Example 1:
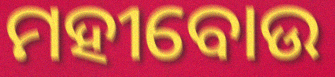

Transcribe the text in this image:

ମହୀବୋଉ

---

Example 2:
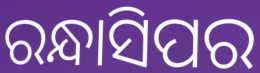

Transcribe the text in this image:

ରନ୍ଧାସିପର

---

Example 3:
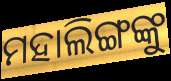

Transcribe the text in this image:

ମହାଲିଙ୍ଗଙ୍କୁ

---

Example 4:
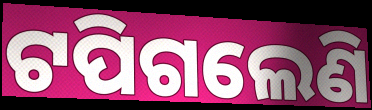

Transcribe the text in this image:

ଟପିଗଲେଣି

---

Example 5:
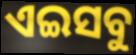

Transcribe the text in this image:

ଏଇସବୁ